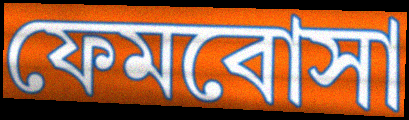
ফেমবোসা